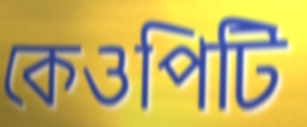
কেওপিটি